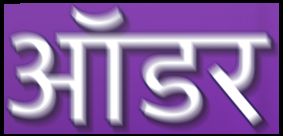
ऑडर